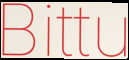
Bittu